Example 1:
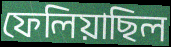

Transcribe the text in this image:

ফেলিয়াছিল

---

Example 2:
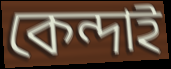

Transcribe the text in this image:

কেন্দাই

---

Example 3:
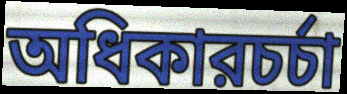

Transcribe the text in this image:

অধিকারচর্চা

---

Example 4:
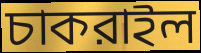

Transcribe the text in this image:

চাকরাইল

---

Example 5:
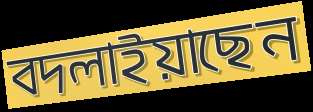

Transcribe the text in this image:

বদলাইয়াছেন